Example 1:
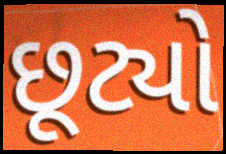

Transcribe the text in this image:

છૂટ્યો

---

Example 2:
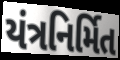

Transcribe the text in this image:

યંત્રનિર્મિત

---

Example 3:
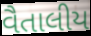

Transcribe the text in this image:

વૈતાલીય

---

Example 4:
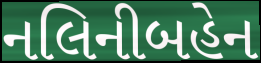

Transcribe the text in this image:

નલિનીબહેન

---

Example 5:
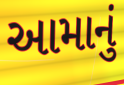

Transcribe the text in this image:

આમાનું